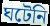
ঘটেনি